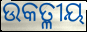
ଉକତ୍ଳୀୟ